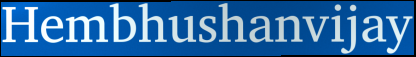
Hembhushanvijay